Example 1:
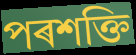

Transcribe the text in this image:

পৰশক্তি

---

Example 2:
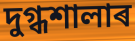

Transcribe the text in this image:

দুগ্ধশালাৰ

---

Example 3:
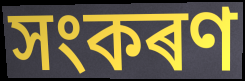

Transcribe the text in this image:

সংকৰণ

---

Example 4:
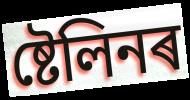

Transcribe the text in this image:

ষ্টেলিনৰ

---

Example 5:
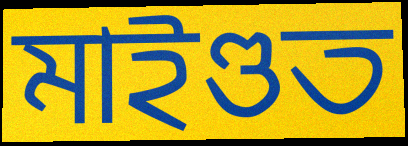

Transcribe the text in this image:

মাইণ্ডত